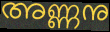
അണ്ണനു